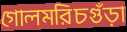
গোলমরিচগুঁড়া